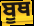
ਬੂਥ